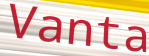
Vanta